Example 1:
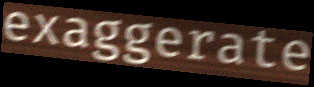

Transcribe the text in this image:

exaggerate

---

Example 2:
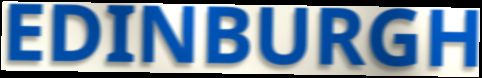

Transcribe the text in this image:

EDINBURGH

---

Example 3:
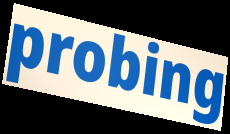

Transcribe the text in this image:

probing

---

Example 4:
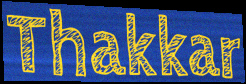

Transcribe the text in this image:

Thakkar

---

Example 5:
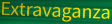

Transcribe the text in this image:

Extravaganza